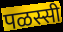
पळस्सी